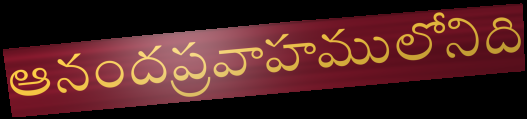
ఆనందప్రవాహములోనిది